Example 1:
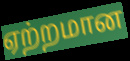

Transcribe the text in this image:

ஏற்றமான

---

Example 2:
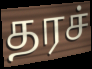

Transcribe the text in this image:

தரச்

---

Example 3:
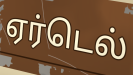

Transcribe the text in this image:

ஏர்டெல்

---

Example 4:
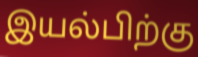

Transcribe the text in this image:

இயல்பிற்கு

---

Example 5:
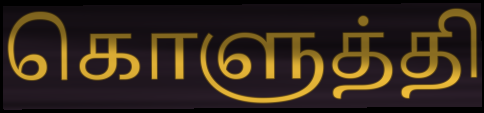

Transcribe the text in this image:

கொளுத்தி